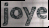
joye